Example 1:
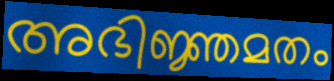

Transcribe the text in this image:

അഭിജ്ഞമതം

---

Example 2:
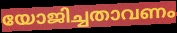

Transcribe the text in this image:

യോജിച്ചതാവണം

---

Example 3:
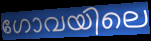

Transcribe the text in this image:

ഗോവയിലെ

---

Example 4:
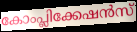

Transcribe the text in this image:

കോംപ്ലിക്കേഷൻസ്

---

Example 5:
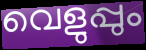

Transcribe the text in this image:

വെളുപ്പും